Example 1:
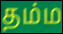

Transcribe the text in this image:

தம்ம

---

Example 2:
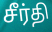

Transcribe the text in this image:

சீர்தி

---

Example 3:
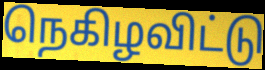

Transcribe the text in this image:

நெகிழவிட்டு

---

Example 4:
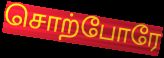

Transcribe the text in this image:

சொற்போரே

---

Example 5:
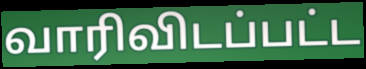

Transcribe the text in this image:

வாரிவிடப்பட்ட